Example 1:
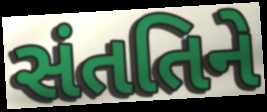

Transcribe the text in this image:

સંતતિને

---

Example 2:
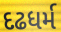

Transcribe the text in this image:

દઢધર્મ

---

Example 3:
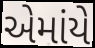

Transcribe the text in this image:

એમાંયે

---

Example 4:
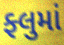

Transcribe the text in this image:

ફ્લુમાં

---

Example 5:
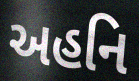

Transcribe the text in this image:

અહનિ